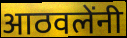
आठवलेंनी